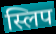
स्लिप